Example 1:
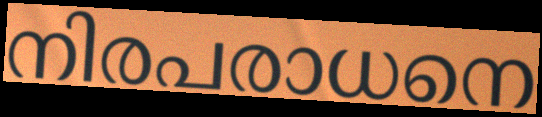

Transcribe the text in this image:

നിരപരാധനെ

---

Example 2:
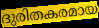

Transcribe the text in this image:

ദുരിതകരമായ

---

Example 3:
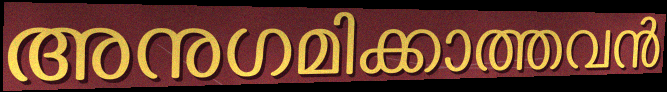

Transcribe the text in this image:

അനുഗമിക്കാത്തവൻ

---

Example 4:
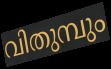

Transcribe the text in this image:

വിതുമ്പും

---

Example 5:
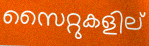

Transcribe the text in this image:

സൈറ്റുകളില്